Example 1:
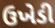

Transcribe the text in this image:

ઉખેડી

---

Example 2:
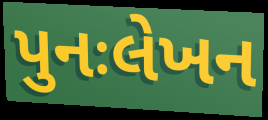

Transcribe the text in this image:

પુનઃલેખન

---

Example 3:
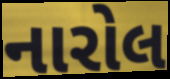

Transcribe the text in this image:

નારોલ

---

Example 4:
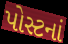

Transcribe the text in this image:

પોસ્ટનાં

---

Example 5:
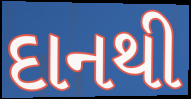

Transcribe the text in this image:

દાનથી